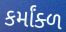
કર્માંક્ળ